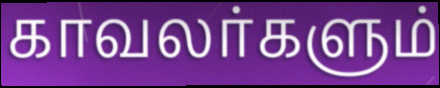
காவலர்களும்